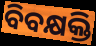
ବିବକ୍ଷକ୍ତି